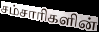
சம்சாரிகளின்